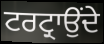
ਟਰਟ੍ਰਾਉਂਦੇ